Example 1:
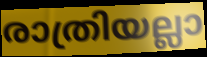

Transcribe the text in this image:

രാത്രിയല്ലാ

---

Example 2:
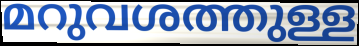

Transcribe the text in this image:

മറുവശത്തുള്ള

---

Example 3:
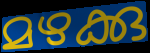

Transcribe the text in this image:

മഴക്കു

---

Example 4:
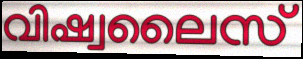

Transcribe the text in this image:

വിഷ്വലൈസ്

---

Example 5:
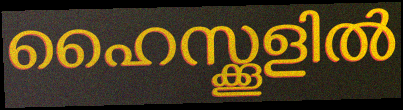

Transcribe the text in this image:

ഹൈസ്ക്കൂളിൽ